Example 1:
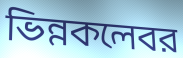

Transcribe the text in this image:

ভিন্নকলেবর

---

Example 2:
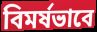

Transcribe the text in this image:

বিমর্ষভাবে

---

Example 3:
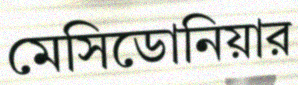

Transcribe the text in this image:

মেসিডোনিয়ার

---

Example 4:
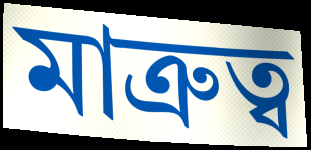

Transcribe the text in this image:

মাত্রুত্ব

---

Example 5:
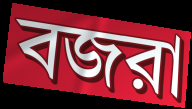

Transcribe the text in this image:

বজরা